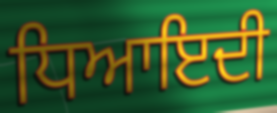
ਧਿਆਇਦੀ